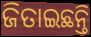
ଜିତାଇଛନ୍ତି